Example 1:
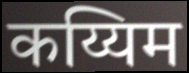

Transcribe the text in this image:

कय्यिम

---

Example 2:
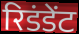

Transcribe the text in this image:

रिडंडेंट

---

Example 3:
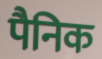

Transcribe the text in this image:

पैनिक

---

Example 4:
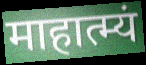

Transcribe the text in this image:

माहात्म्यं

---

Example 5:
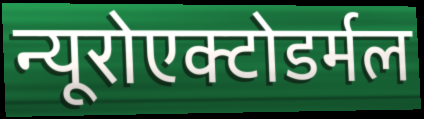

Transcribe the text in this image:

न्यूरोएक्टोडर्मल